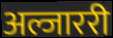
अल्जाररी